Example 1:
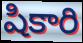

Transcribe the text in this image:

షికారి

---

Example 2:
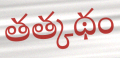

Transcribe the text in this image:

తత్కథం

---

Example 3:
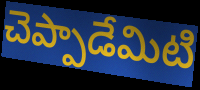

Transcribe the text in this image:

చెప్పాడేమిటి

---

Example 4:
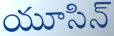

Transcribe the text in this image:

యూసిన్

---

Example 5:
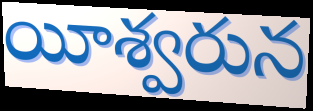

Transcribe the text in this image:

యీశ్వరున